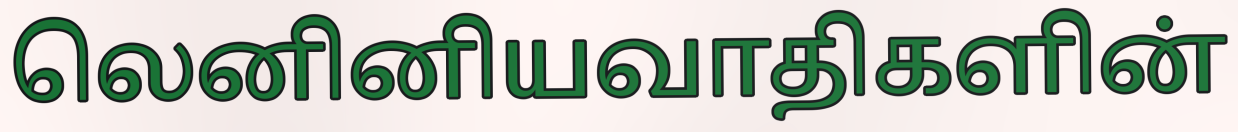
லெனினியவாதிகளின்